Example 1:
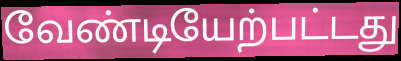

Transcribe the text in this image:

வேண்டியேற்பட்டது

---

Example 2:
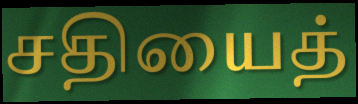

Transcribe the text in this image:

சதியைத்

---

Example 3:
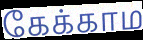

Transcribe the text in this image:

கேக்காம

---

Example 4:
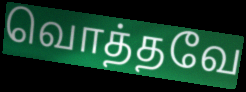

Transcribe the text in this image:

வொத்தவே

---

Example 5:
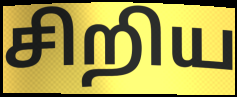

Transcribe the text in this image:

சிறிய